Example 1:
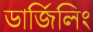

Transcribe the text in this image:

ডার্জিলিং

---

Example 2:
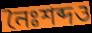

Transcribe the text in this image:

নৈঃশব্দও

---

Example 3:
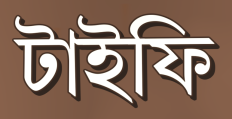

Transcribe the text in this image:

টাইফি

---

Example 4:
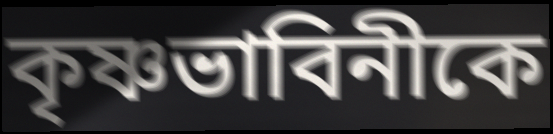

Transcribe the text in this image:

কৃষ্ণভাবিনীকে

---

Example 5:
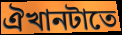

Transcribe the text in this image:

ঐখানটাতে